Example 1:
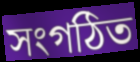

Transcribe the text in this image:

সংগঠিত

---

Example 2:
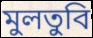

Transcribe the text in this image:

মুলতুবি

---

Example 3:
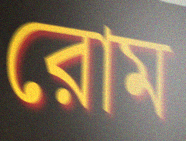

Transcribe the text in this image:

রোম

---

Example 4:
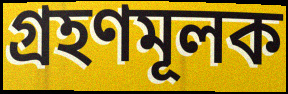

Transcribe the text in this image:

গ্রহণমূলক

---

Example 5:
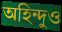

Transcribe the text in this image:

অহিন্দুও